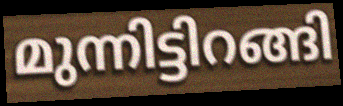
മുന്നിട്ടിറങ്ങി